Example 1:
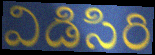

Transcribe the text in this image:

విడిసిరి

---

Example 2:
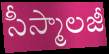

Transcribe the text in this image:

సీస్మాలజీ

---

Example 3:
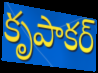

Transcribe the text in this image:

కృపాకర్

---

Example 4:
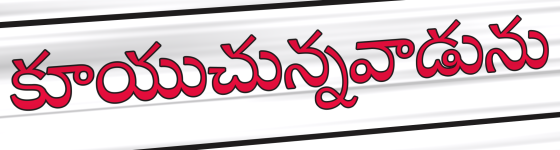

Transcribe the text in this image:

కూయుచున్నవాడును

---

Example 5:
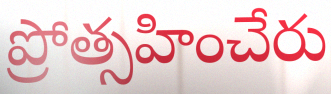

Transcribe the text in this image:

ప్రోత్సహించేరు